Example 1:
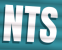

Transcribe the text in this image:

NTS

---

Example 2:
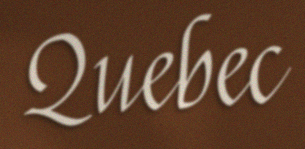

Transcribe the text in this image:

Quebec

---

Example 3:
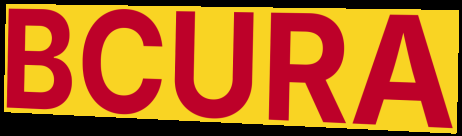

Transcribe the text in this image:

BCURA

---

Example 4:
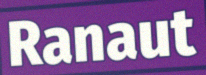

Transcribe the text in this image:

Ranaut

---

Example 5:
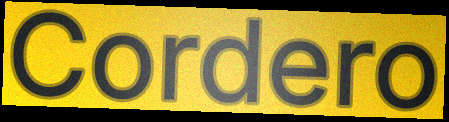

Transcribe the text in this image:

Cordero